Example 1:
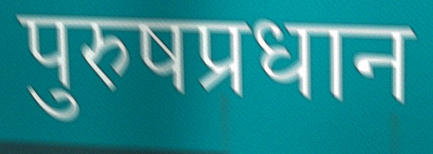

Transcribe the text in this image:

पुरुषप्रधान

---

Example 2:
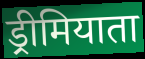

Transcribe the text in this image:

ड्रीमियाता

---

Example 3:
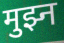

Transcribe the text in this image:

मुझ्न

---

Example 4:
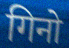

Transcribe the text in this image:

गिनो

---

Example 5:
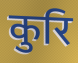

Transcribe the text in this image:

कुरि